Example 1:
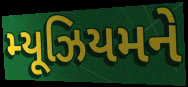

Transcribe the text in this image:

મ્યૂઝિયમને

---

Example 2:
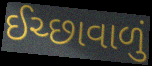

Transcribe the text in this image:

ઈચ્છાવાળું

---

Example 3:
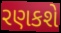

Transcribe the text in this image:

રણકશે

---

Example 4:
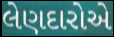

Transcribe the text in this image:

લેણદારોએ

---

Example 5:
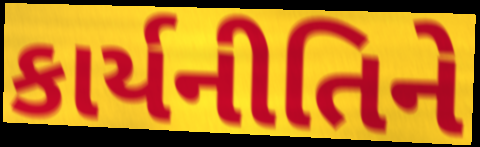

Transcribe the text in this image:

કાર્યનીતિને